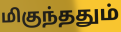
மிகுந்ததும்